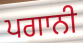
ਪਗਾਨੀ